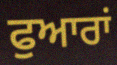
ਫੁਆਰਾਂ